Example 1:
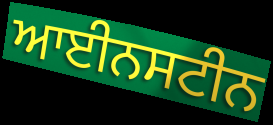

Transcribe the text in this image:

ਆਈਨਸਟੀਨ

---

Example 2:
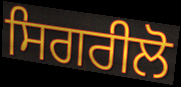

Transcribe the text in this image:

ਸਿਗਰੀਲੋ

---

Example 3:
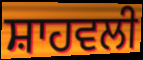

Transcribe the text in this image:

ਸ਼ਾਹਵਲੀ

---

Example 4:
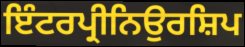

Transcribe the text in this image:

ਇੰਟਰਪ੍ਰੀਨਿਉਰਸ਼ਿਪ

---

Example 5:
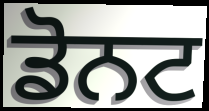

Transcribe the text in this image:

ਡੋਨਟ